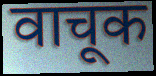
वाचूक